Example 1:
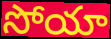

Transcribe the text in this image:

సోయా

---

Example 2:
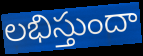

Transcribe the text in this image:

లభిస్తుందా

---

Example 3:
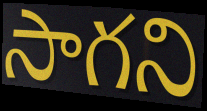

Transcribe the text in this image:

సాగని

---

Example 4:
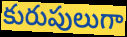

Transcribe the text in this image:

కురుపులుగా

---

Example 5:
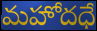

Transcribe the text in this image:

మహోదధే